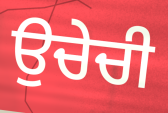
ਉਚੇਚੀ